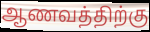
ஆணவத்திற்கு